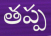
తప్ప